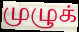
முழுக்